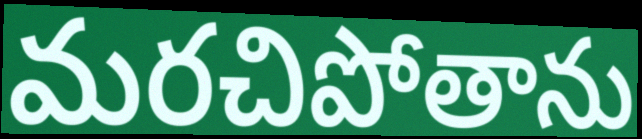
మరచిపోతాను